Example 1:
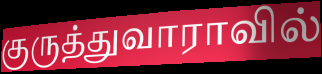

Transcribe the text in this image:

குருத்துவாராவில்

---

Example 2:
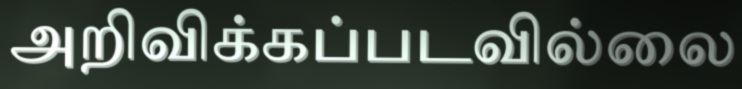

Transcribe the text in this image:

அறிவிக்கப்படவில்லை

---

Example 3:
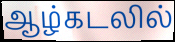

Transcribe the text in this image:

ஆழ்கடலில்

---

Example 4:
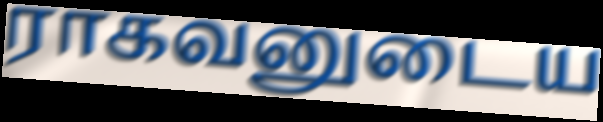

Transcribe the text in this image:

ராகவனுடைய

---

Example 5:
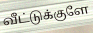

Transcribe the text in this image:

வீட்டுக்குளே